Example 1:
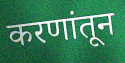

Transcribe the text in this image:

करणांतून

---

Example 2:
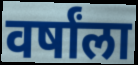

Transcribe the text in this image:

वर्षांला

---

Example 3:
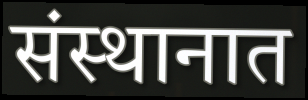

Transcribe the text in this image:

संस्थानात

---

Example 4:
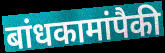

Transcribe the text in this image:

बांधकामांपैकी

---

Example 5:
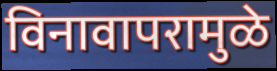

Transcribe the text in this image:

विनावापरामुळे